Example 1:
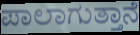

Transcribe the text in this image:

ಪಾಲಾಗುತ್ತಾನೆ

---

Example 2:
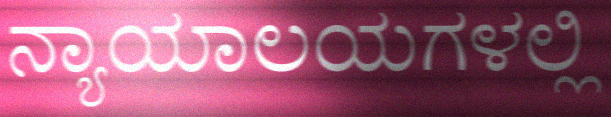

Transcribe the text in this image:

ನ್ಯಾಯಾಲಯಗಳಲ್ಲಿ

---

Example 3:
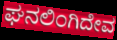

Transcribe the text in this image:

ಘನಲಿಂಗಿದೇವ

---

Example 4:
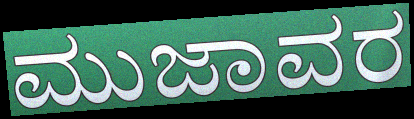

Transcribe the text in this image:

ಮುಜಾವರ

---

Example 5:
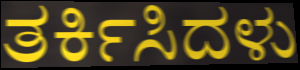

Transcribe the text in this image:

ತರ್ಕಿಸಿದಳು